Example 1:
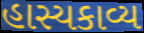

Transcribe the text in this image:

હાસ્યકાવ્ય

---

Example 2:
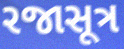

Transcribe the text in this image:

રજાસૂત્ર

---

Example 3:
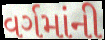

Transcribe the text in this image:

વર્ગમાંની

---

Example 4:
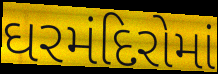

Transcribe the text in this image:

ઘરમંદિરોમાં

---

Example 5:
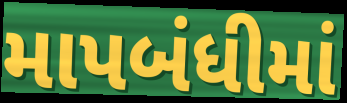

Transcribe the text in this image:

માપબંધીમાં